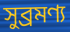
সুব্রমণ্য